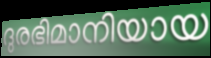
ദുരഭിമാനിയായ